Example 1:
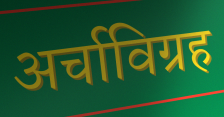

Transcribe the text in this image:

अर्चाविग्रह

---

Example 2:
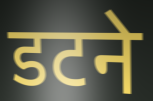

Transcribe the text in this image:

डटने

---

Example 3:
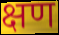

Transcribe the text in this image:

क्षण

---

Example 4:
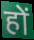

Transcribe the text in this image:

हों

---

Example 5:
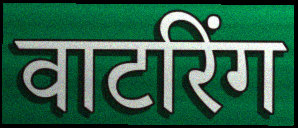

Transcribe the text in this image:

वाटरिंग